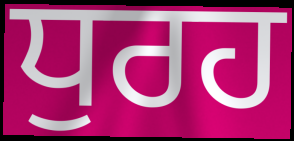
ਧੁਰਹ